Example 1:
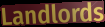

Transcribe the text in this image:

Landlords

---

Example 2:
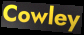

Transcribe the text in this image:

Cowley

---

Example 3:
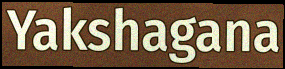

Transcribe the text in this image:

Yakshagana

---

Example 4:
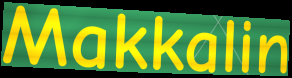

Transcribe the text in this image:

Makkalin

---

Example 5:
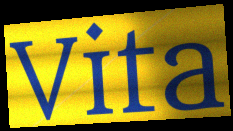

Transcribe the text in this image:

Vita